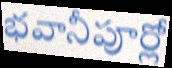
భవానీపూర్లో